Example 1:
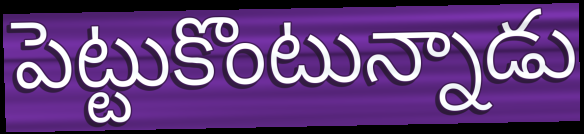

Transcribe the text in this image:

పెట్టుకొంటున్నాడు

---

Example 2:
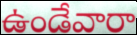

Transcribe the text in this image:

ఉండేవారా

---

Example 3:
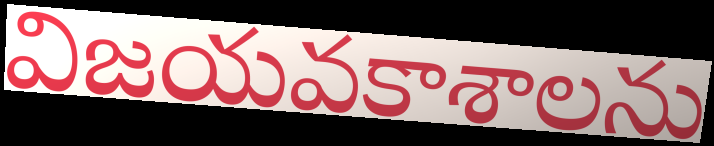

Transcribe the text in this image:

విజయవకాశాలను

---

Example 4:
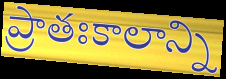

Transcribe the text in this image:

ప్రాతఃకాలాన్ని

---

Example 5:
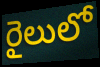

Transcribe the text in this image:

రైలులో